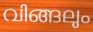
വിങ്ങലും